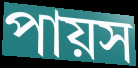
পায়স